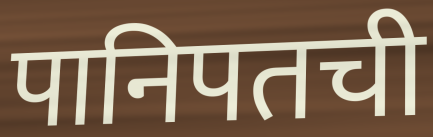
पानिपतची